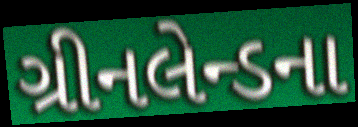
ગ્રીનલેન્ડના